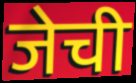
जेची